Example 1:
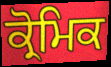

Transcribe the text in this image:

ਕ੍ਰੋਮਿਕ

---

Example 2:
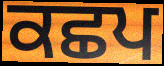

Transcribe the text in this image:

ਕਛਪ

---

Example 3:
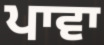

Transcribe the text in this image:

ਪਾਵਾ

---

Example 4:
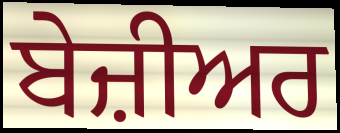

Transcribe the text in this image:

ਬੇਜ਼ੀਅਰ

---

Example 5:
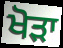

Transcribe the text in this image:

ਖੋੜਾ